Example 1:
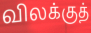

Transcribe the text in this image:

விலக்குத்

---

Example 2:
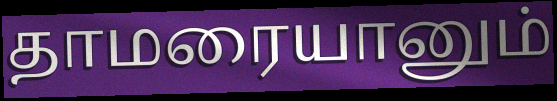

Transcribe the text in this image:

தாமரையானும்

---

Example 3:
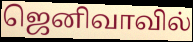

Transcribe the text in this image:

ஜெனிவாவில்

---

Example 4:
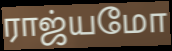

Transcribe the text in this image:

ராஜ்யமோ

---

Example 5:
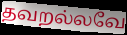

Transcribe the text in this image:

தவறல்லவே